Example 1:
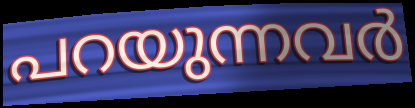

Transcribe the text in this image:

പറയുന്നവർ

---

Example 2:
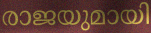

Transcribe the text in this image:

രാജയുമായി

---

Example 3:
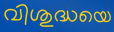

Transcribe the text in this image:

വിശുദ്ധയെ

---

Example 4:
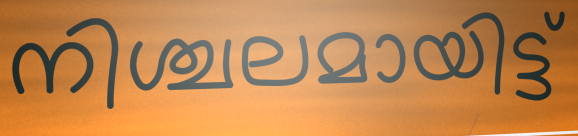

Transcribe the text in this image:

നിശ്ചലമായിട്ട്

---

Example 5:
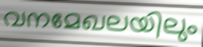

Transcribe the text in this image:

വനമേഖലയിലും